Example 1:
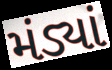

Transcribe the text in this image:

મંડ્યાં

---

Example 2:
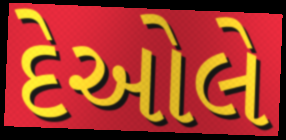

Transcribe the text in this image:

દેઓલે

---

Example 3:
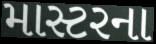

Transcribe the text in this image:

માસ્ટરના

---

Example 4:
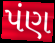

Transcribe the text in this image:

પંણ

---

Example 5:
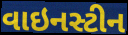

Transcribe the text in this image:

વાઇનસ્ટીન